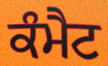
ਕੰਮੈਟ